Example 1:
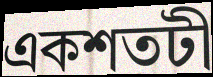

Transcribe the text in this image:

একশতটী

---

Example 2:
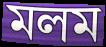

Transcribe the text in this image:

মলম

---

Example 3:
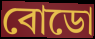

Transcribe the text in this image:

বোডো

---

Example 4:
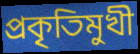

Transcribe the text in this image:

প্রকৃতিমুখী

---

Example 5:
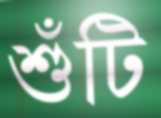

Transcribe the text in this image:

শুঁটি